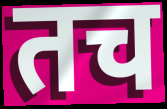
तच